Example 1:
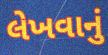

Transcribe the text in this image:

લેખવાનું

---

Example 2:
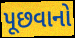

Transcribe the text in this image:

પૂછવાનો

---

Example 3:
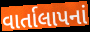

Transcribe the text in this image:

વાર્તાલાપનાં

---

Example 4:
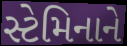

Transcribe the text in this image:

સ્ટેમિનાને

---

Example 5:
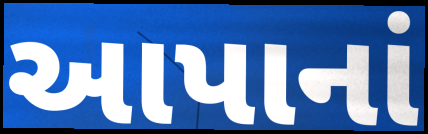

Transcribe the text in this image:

આપાનાં